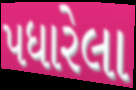
પધારેલા